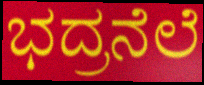
ಭದ್ರನೆಲೆ